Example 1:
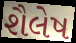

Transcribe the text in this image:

શૈલેષ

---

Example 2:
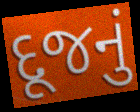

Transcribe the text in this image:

દૂજનું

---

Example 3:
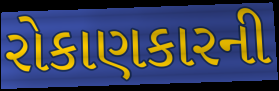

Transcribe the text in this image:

રોકાણકારની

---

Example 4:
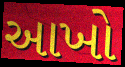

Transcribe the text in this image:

આખો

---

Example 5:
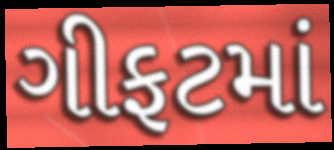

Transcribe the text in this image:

ગીફટમાં